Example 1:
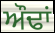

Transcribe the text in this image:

ਔਢਾਂ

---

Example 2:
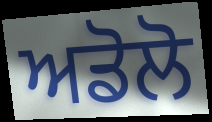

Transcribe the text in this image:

ਅਡੋਲੋ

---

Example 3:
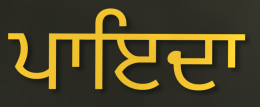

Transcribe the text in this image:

ਪਾਇਦਾ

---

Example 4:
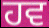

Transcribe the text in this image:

ਹਵ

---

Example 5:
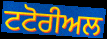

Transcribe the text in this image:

ਟਟੋਰੀਅਲ